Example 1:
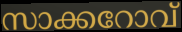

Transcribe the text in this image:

സാക്കറോവ്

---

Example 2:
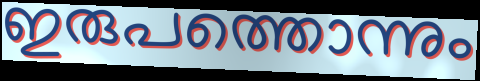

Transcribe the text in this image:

ഇരുപത്തൊന്നും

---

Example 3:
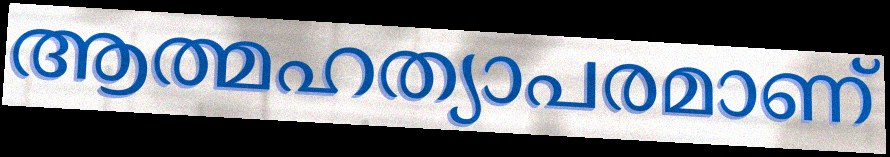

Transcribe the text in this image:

ആത്മഹത്യാപരമാണ്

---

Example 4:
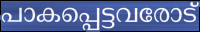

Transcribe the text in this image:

പാകപ്പെട്ടവരോട്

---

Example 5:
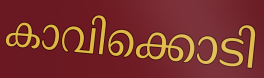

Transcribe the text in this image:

കാവിക്കൊടി